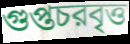
গুপ্তচরবৃত্ত